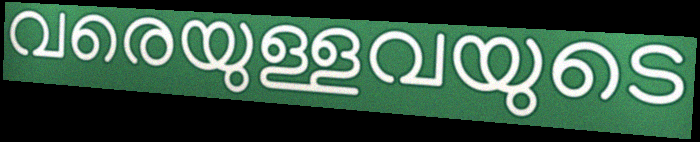
വരെയുള്ളവയുടെ